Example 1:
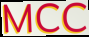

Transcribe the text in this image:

MCC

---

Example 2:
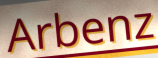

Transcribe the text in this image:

Arbenz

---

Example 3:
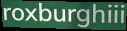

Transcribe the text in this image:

roxburghiii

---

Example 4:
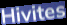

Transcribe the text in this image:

Hivites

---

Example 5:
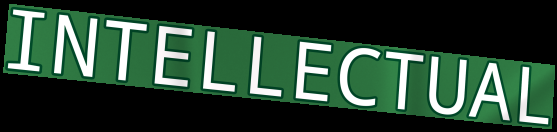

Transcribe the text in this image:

INTELLECTUAL